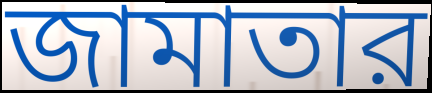
জামাতার